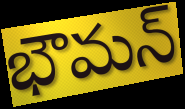
భౌమన్